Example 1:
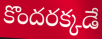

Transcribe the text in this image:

కొందరక్కడే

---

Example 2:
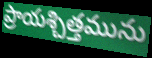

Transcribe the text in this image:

ప్రాయశ్చిత్తమును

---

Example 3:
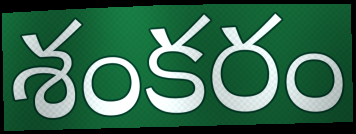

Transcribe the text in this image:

శంకరం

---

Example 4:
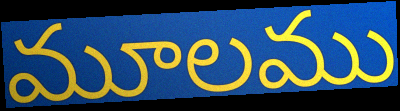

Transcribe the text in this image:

మూలము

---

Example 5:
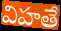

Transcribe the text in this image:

విహతే